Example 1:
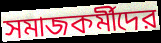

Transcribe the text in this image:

সমাজকর্মীদের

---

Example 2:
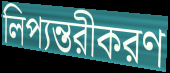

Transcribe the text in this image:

লিপ্যন্তরীকরণ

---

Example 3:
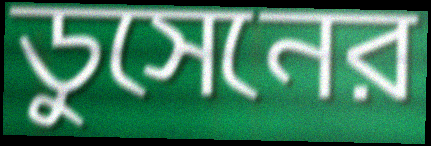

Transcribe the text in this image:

ডুসেনের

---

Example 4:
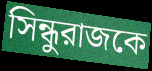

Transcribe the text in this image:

সিন্ধুরাজকে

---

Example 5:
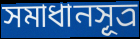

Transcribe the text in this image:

সমাধানসূত্র